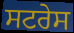
ਸਟਰੇਸ